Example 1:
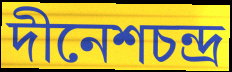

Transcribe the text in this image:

দীনেশচন্দ্র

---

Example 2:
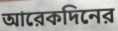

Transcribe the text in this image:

আরেকদিনের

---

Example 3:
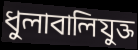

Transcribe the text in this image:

ধুলাবালিযুক্ত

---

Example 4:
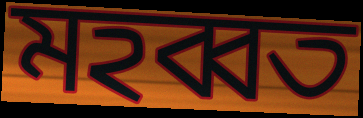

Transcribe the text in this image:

মহব্বত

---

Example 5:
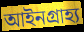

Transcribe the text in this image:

আইনগ্রাহ্য